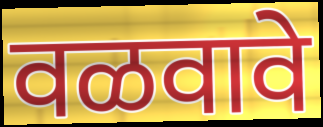
वळवावे